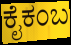
ಕೈಕಂಬ